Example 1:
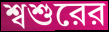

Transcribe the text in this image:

শ্বশুরের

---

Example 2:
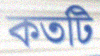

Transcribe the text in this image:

কতটি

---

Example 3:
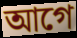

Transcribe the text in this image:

আগে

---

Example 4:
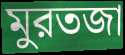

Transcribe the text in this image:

মুরতজা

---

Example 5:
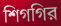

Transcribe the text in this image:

শিগগির